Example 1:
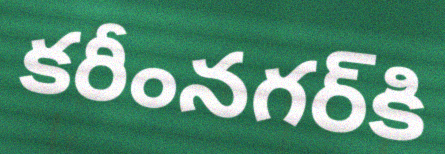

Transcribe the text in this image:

కరీంనగర్‌కి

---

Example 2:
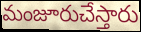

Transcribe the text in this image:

మంజూరుచేస్తారు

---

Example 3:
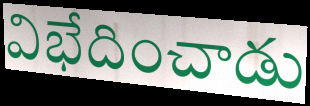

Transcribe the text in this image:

విభేదించాడు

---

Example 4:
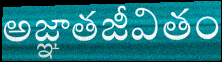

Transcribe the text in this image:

అజ్ఞాతజీవితం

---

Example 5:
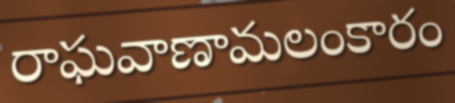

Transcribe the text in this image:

రాఘవాణామలంకారం